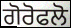
ਗੋਰੋਫਲੋ